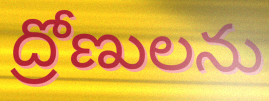
ద్రోణులను